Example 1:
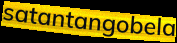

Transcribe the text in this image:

satantangobela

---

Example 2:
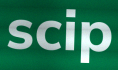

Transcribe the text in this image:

scip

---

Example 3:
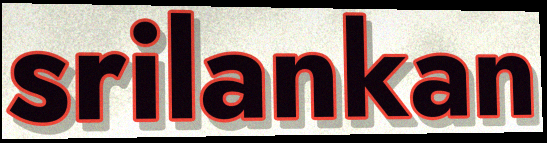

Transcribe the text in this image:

srilankan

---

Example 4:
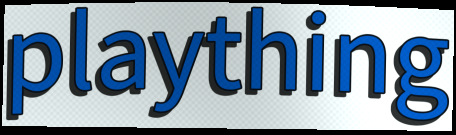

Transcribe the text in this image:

plaything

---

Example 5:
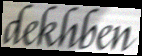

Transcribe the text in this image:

dekhben